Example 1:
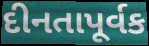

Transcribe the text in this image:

દીનતાપૂર્વક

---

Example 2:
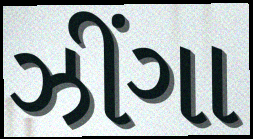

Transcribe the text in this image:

ઝીંગા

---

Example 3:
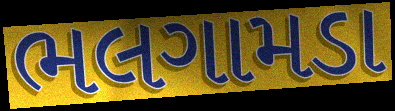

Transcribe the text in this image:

ભલગામડા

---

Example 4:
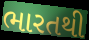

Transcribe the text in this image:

ભારતથી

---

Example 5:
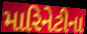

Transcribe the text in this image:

મારિનેટીના